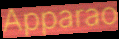
Apparao